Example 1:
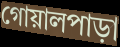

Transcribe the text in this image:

গোয়ালপাড়া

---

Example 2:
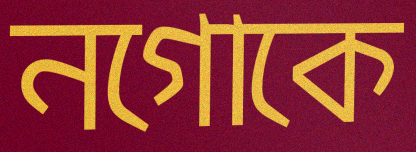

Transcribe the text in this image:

নগোকে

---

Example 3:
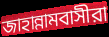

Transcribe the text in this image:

জাহান্নামবাসীরা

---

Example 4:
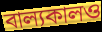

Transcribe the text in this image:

বাল্যকালও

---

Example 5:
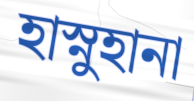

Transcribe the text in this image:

হাস্নুহানা